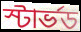
স্টার্ভড